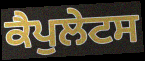
ਕੈਪੁਲੇਟਸ